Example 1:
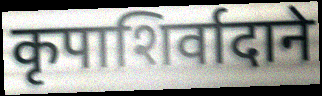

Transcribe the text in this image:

कृपाशिर्वादाने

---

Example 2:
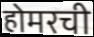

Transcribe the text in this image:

होमरची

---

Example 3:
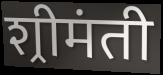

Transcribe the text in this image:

श्रीमंती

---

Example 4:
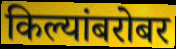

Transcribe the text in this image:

किल्यांबरोबर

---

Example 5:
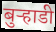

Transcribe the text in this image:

बुऱ्हाडी